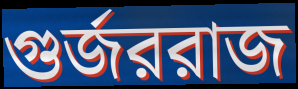
গুর্জররাজ